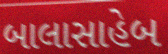
બાલાસાહેબ